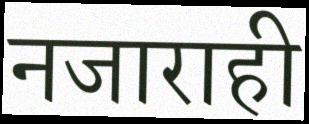
नजाराही